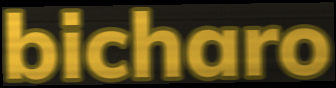
bicharo